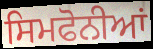
ਸਿਮਫੋਨੀਆਂ